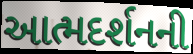
આત્મદર્શનની